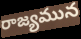
రాజ్యమున